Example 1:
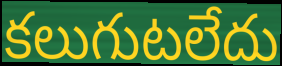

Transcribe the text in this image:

కలుగుటలేదు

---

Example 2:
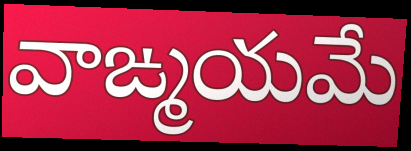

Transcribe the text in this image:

వాఙ్మయమే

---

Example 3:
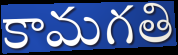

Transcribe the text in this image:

కామగతి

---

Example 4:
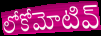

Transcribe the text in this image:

లోకోమోటివ్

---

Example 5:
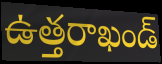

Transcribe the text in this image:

ఉత్తరాఖండ్